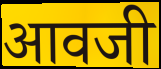
आवजी